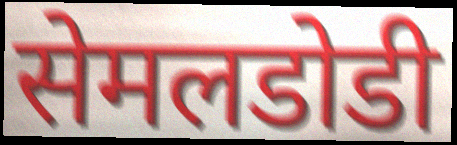
सेमलडोडी